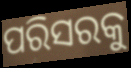
ପରିସରକୁ